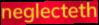
neglecteth